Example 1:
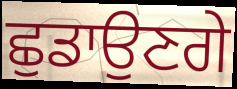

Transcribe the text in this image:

ਛੁਡਾਉਣਗੇ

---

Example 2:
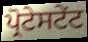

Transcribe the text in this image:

ਪ੍ਰੋਟੇਸਟੇਂਟ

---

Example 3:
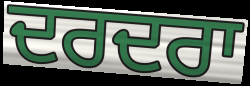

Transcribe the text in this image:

ਦਰਦਰਾ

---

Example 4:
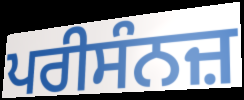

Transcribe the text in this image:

ਪਰੀਸੰਨਜ਼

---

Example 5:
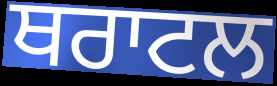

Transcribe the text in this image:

ਥਰਾਟਲ